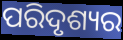
ପରିଦୃଶ୍ୟର